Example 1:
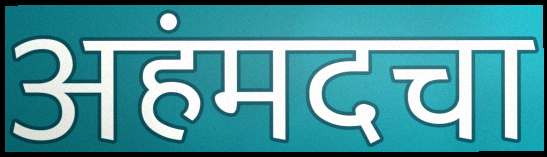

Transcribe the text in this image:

अहंमदचा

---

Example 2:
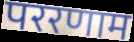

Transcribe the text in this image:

पररणाम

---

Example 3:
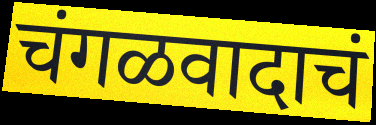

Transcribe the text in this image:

चंगळवादाचं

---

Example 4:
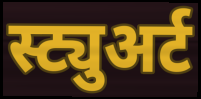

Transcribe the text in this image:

स्ट्युअर्ट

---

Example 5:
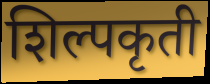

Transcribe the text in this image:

शिल्पकृती